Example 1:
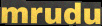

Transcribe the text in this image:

mrudu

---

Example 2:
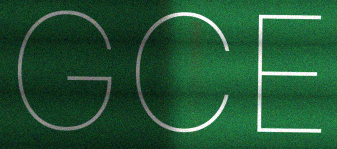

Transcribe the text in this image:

GCE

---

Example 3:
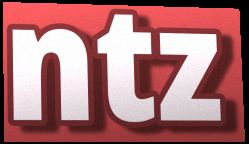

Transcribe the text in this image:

ntz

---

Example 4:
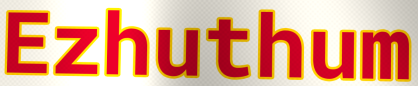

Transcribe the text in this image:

Ezhuthum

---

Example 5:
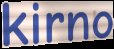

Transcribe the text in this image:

kirno